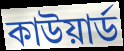
কাউয়ার্ড